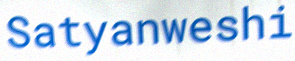
Satyanweshi